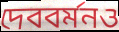
দেববর্মনও